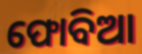
ଫୋବିଆ